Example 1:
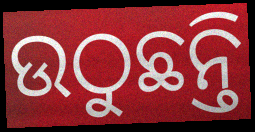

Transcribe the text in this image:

ଉଠୁଛନ୍ତି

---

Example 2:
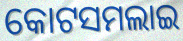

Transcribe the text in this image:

କୋଟସମଲାଇ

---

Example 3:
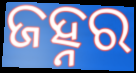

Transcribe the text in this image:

ଜହ୍ନର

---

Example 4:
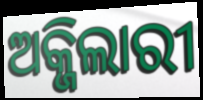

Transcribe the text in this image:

ଅକ୍ଜିଲାରୀ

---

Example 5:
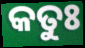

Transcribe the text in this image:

କତୁଃ